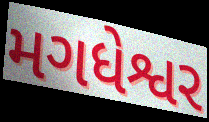
મગધેશ્વર